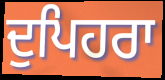
ਦੁਪਿਹਰਾ